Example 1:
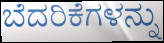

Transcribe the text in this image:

ಬೆದರಿಕೆಗಳನ್ನು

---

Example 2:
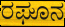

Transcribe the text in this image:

ರಘೂನ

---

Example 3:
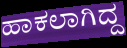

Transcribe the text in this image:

ಹಾಕಲಾಗಿದ್ದ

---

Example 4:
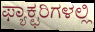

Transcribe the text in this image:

ಫ್ಯಾಕ್ಟರಿಗಳಲ್ಲಿ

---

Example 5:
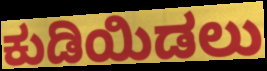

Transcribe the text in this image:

ಕುಡಿಯಿಡಲು